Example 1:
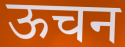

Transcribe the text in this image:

ऊचन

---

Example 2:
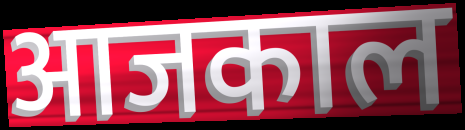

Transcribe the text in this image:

आजकाल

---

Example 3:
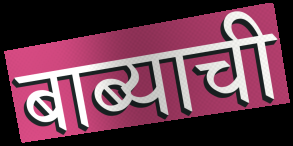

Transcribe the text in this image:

बाब्याची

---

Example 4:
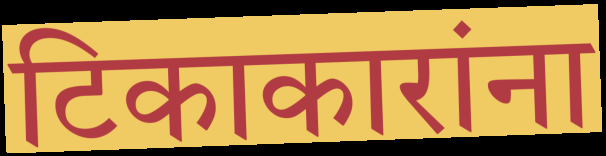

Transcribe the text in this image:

टिकाकारांना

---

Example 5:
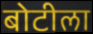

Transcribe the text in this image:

बोटीला